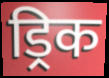
ड्रिक